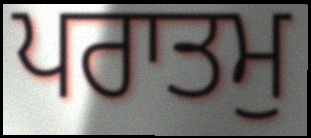
ਪਰਾਤਮੁ